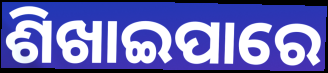
ଶିଖାଇପାରେ